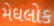
મેઘલોક